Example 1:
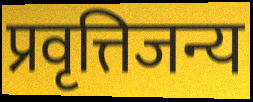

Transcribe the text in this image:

प्रवृत्तिजन्य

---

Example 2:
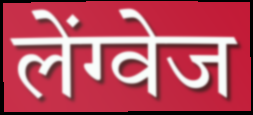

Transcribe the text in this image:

लेंग्वेज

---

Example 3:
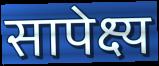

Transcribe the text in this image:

सापेक्ष्य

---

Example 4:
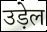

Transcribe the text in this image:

उड़ेल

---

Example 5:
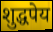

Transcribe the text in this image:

शुद्धपेय